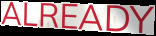
ALREADY